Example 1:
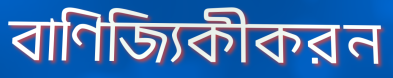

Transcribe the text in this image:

বাণিজ্যিকীকরন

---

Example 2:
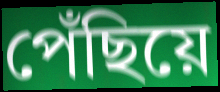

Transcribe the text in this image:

পেঁছিয়ে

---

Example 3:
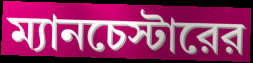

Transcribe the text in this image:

ম্যানচেস্টারের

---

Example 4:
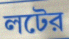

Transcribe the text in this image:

লটের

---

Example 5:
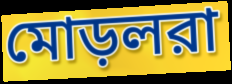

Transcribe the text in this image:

মোড়লরা